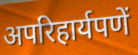
अपरिहार्यपणें